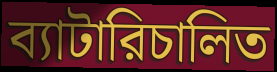
ব্যাটারিচালিত